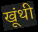
खूंथी